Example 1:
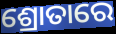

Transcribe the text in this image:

ଶ୍ରୋତାରେ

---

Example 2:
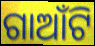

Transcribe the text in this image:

ଗାଆଁଟି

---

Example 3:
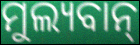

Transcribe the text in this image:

ମୁଲ୍ୟବାନ୍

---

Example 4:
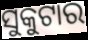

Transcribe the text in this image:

ସୁକୁଟାର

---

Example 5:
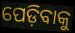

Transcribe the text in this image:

ପେଡ଼ିବାକୁ